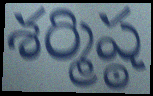
శర్మిష్ఠ